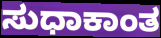
ಸುಧಾಕಾಂತ